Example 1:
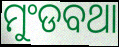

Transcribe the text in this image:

ମୁଂଡବଥା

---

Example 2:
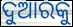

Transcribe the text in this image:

ଦୁଆରକୁ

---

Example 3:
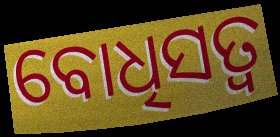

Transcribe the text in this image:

ବୋଧିସତ୍ୱ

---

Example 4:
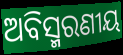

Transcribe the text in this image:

ଅବିସ୍ମରଣୀୟ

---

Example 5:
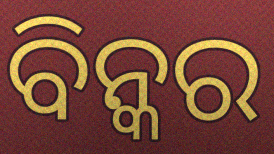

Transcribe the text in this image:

ବିନ୍କର